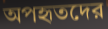
অপহৃতদের